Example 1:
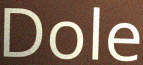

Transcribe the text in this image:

Dole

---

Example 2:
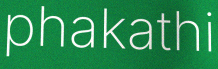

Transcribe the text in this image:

phakathi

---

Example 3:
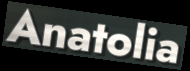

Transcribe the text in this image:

Anatolia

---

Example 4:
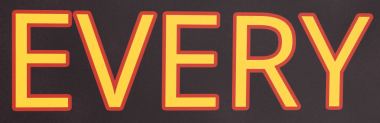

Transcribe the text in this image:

EVERY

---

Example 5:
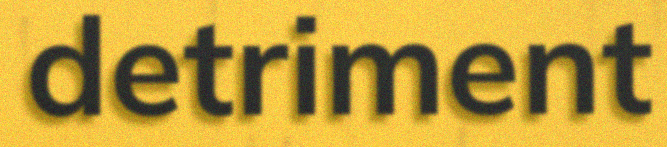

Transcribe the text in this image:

detriment